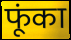
फूंका